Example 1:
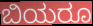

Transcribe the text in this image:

ಬಿಯರೂ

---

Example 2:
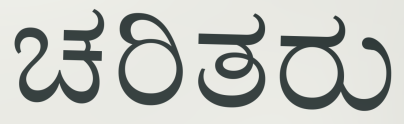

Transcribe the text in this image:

ಚರಿತರು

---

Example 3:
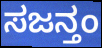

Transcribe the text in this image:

ಸಜನ್ತಂ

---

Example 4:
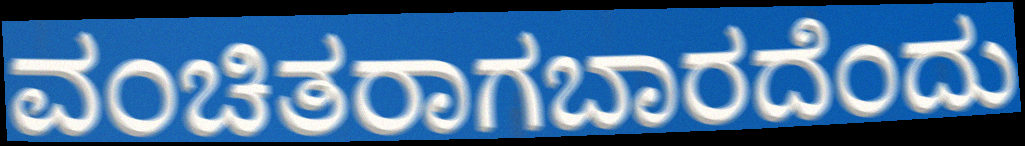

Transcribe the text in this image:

ವಂಚಿತರಾಗಬಾರದೆಂದು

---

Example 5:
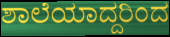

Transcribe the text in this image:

ಶಾಲೆಯಾದ್ದರಿಂದ